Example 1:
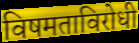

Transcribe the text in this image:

विषमताविरोधी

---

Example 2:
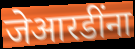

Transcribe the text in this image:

जेआरडींना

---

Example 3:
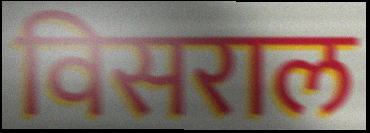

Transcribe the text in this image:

विसराल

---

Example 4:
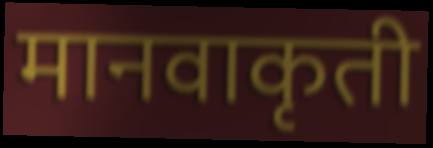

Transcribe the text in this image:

मानवाकृती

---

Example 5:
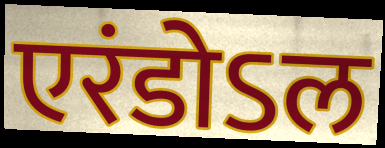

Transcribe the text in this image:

एरंडोऽल